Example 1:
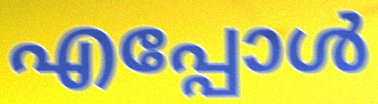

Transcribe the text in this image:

എപ്പോൾ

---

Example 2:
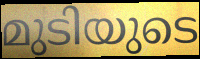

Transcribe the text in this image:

മുടിയുടെ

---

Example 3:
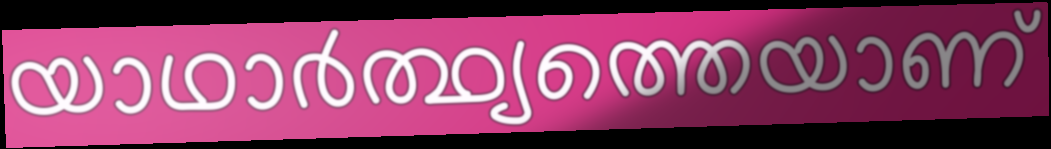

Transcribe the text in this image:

യാഥാർത്ഥ്യത്തെയാണ്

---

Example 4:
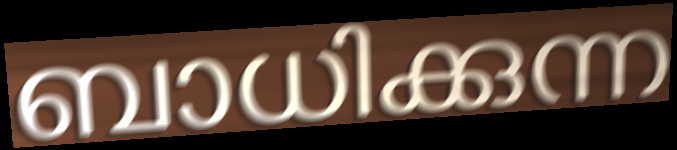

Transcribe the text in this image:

ബാധിക്കുന്ന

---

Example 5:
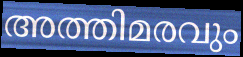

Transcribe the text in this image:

അത്തിമരവും